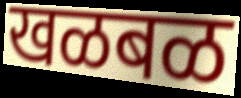
खळबळ